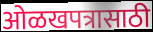
ओळखपत्रासाठी